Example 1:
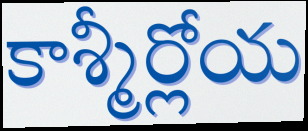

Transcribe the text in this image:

కాశ్మీర్లోయ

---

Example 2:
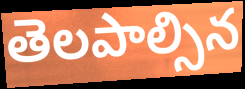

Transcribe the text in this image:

తెలపాల్సిన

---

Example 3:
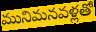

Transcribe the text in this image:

మునిమనవళ్లతో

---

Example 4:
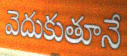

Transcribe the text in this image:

వెదుకుతూనే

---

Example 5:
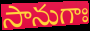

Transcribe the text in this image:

సానుగాః